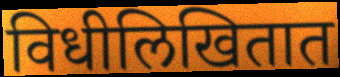
विधीलिखितात